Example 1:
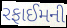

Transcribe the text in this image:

રફાઈમની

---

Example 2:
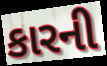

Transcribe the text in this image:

કારની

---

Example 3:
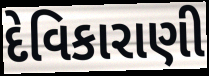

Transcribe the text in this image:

દેવિકારાણી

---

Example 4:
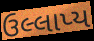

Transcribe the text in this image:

ઉલ્લાપ્ય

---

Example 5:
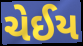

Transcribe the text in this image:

ચેઈય